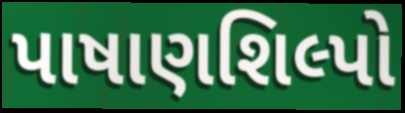
પાષાણશિલ્પો